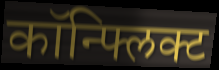
कॉन्फ्लिक्ट